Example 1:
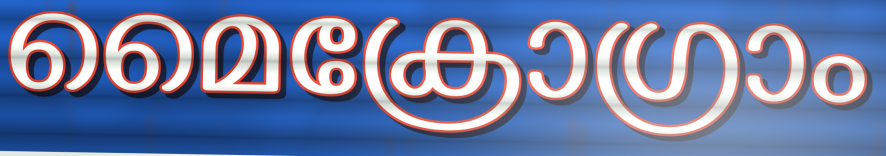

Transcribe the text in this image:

മൈക്രോഗ്രാം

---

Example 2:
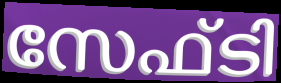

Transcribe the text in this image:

സേഫ്ടി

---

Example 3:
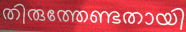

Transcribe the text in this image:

തിരുത്തേണ്ടതായി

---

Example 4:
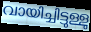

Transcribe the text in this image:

വായിച്ചിട്ടുള്ളു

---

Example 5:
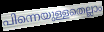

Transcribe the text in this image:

പിന്നെയുള്ളതെല്ലാം